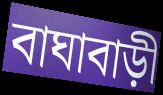
বাঘাবাড়ী